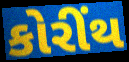
કોરીંથ